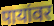
पायांवर